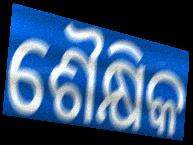
ଶୈକ୍ଷିକ